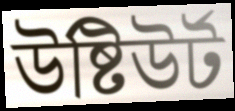
উষ্টিউৰ্ট